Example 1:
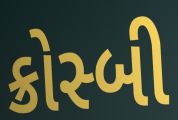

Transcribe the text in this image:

ક્રોસ્બી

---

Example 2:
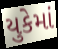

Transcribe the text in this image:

યુકેમાં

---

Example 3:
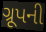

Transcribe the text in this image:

ગ્રૂપની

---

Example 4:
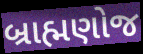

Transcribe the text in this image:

બ્રાહ્મણોજ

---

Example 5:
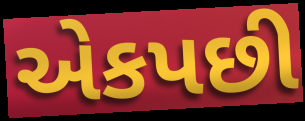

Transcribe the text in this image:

એકપછી